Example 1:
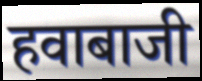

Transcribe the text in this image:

हवाबाजी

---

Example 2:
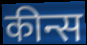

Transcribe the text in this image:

कीन्स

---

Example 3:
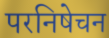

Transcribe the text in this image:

परनिषेचन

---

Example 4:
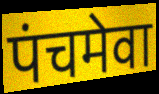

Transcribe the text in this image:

पंचमेवा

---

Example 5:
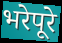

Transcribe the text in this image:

भरेपूरे